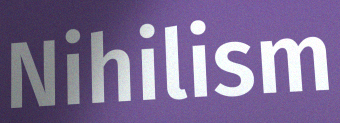
Nihilism